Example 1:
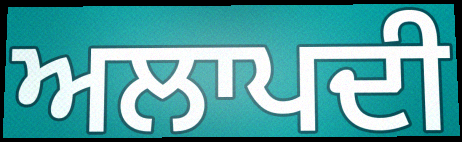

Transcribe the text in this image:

ਅਲਾਪਦੀ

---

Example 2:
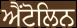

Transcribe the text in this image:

ਐਂਟੋਲਿਨ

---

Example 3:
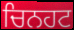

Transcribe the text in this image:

ਚਿਨਹਟ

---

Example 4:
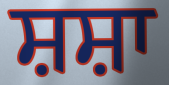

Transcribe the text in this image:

ਸ਼ਸ਼ਾ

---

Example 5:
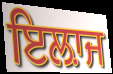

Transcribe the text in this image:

ਇਲ਼ਾਜ